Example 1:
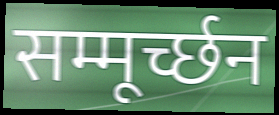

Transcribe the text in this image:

सम्मूर्च्छन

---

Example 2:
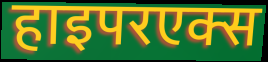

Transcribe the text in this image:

हाइपरएक्स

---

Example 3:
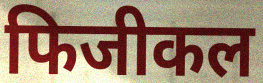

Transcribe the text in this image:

फिजीकल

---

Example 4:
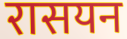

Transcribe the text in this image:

रासयन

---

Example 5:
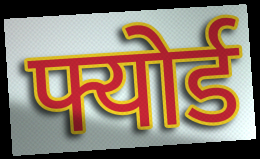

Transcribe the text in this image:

फ्योर्ड